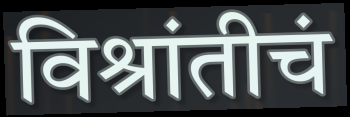
विश्रांतीचं